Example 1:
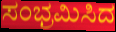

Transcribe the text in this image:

ಸಂಭ್ರಮಿಸಿದ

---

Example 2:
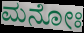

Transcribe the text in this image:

ಮನೋಃ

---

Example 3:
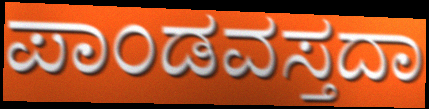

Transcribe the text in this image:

ಪಾಂಡವಸ್ತದಾ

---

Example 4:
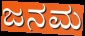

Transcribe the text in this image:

ಜನಮ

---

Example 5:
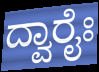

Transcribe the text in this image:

ದ್ವಾರೈಃ